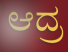
ಆದ್ರ